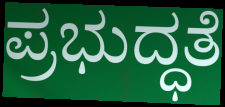
ಪ್ರಭುದ್ಧತೆ